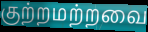
குற்றமற்றவை